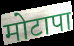
मोटापा